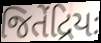
જિતેંદ્રિયઃ